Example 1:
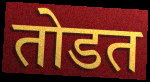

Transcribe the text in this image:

तोडत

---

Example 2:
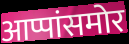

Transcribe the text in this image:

आप्पांसमोर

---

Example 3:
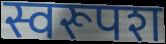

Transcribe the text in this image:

स्वरूपश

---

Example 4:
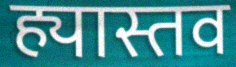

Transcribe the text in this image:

ह्यास्तव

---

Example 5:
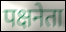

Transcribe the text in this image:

पक्षनेता